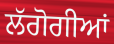
ਲੱਗੋਗੀਆਂ